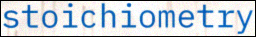
stoichiometry